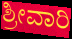
ಶ್ರೀವಾರಿ